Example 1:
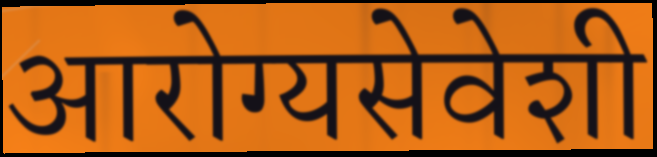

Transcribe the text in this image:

आरोग्यसेवेशी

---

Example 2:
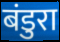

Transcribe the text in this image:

बंडुरा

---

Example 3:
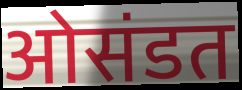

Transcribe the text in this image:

ओसंडत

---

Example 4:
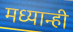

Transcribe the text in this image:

मध्यान्ही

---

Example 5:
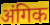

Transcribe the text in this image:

अंगिक